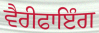
ਵੈਰੀਫਾਇੰਗ